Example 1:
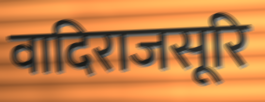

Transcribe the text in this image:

वादिराजसूरि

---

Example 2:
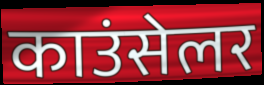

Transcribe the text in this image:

काउंसेलर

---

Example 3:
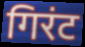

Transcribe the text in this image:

गिरंट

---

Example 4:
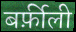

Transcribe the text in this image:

बर्फ़ीली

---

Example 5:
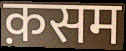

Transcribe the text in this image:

क़सम